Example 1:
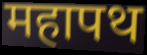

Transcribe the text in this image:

महापथ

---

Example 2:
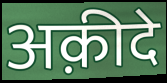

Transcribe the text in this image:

अक़ीदे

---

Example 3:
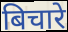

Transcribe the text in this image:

बिचारे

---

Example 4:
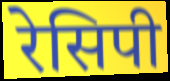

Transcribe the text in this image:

रेसिपी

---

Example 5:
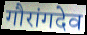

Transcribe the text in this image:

गौरांगदेव